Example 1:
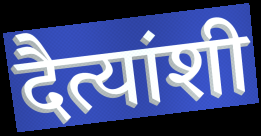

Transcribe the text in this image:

दैत्यांशी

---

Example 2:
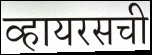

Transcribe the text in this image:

व्हायरसची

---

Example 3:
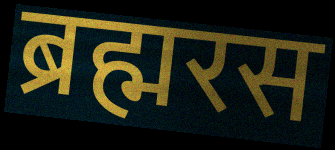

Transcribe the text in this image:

ब्रह्मरस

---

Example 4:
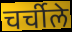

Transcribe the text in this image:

चर्चीले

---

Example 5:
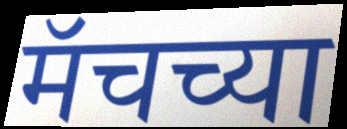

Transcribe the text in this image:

मॅचच्या